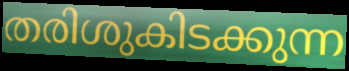
തരിശുകിടക്കുന്ന